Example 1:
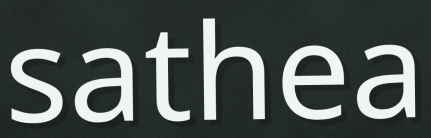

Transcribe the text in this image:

sathea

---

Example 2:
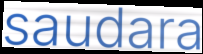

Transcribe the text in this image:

saudara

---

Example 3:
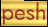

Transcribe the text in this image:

pesh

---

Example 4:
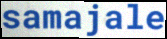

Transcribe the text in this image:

samajale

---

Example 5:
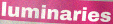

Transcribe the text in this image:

luminaries